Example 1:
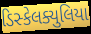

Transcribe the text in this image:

ડિસ્કેલક્યુલિયા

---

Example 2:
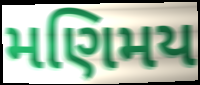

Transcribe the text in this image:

મણિમય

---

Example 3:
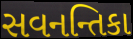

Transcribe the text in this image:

સવનન્તિકા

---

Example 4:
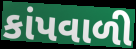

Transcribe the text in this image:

કાંપવાળી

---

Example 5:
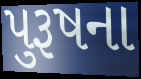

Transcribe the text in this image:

પુરૂષના